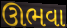
ઊભવા